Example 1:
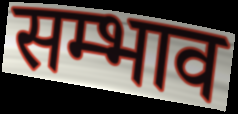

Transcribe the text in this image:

सम्भाव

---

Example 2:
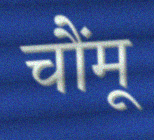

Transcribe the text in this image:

चौंमू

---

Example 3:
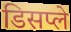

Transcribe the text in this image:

डिसप्ले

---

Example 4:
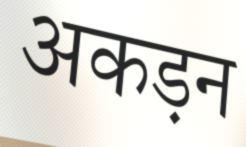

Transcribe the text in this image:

अकड़न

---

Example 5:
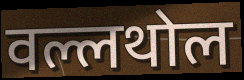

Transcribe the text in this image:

वल्लथोल